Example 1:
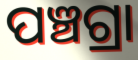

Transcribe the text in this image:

ପଞ୍ଚଗ୍ରା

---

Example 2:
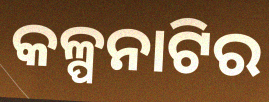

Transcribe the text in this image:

କଳ୍ପନାଟିର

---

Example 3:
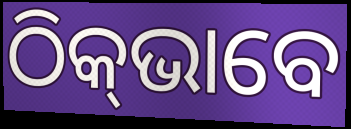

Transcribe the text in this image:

ଠିକ୍‍ଭାବେ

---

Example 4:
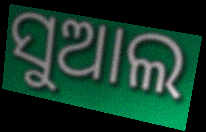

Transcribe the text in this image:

ସୁଆଲ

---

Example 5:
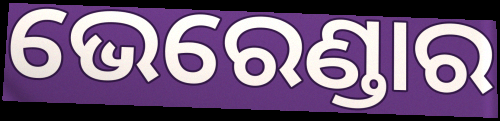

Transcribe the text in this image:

ଭେରେଣ୍ଡାର